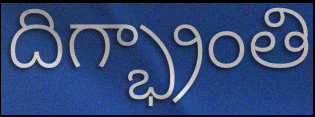
దిగ్భ్రాంతి